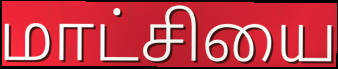
மாட்சியை